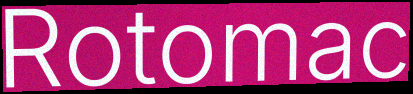
Rotomac